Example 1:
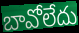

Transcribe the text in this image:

బావోలేదు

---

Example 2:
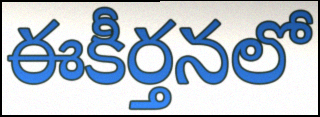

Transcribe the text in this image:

ఈకీర్తనలో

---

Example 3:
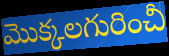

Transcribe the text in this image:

మొక్కలగురించీ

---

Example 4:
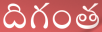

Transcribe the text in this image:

దిగంత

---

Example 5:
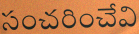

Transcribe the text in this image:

సంచరించేవి